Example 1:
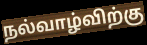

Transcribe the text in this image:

நல்வாழ்விற்கு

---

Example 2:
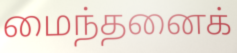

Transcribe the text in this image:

மைந்தனைக்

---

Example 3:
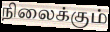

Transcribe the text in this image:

நிலைக்கும்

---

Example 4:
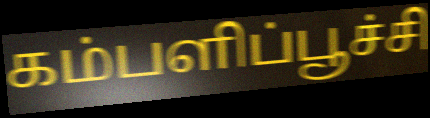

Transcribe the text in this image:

கம்பளிப்பூச்சி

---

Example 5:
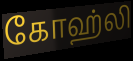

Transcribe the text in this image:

கோஹ்லி